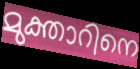
മുക്താറിനെ